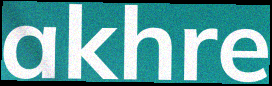
akhre